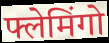
फ्लेमिंगो